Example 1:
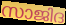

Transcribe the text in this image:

സാജിദ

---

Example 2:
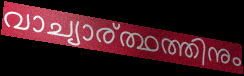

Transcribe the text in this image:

വാച്യാര്ത്ഥത്തിനും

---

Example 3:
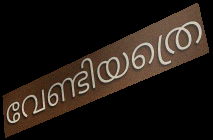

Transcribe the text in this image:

വേണ്ടിയത്രെ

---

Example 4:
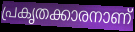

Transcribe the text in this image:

പ്രകൃതക്കാരനാണ്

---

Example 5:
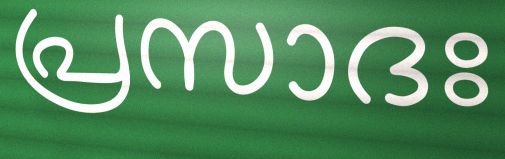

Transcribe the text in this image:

പ്രസാദഃ